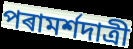
পৰামৰ্শদাত্ৰী